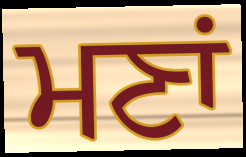
ਮਣਾਂ